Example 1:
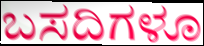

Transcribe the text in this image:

ಬಸದಿಗಳೂ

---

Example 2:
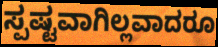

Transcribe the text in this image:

ಸ್ಪಷ್ಟವಾಗಿಲ್ಲವಾದರೂ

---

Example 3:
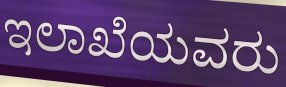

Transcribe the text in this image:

ಇಲಾಖೆಯವರು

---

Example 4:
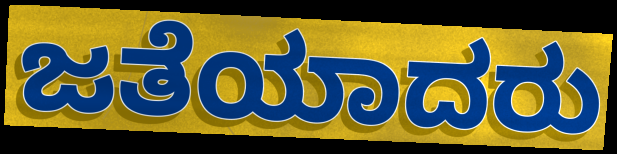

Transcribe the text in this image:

ಜತೆಯಾದರು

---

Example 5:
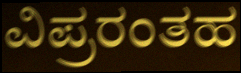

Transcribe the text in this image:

ವಿಪ್ರರಂತಹ